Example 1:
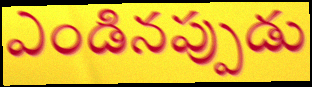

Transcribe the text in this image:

ఎండినప్పుడు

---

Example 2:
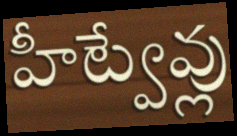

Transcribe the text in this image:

హీట్వేవ్లు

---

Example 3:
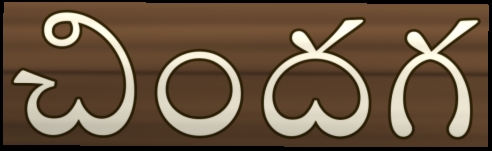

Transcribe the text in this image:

చిందగ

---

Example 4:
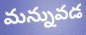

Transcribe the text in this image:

మన్నువడ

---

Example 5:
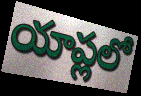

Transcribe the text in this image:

యాప్లలో